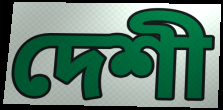
দেশী